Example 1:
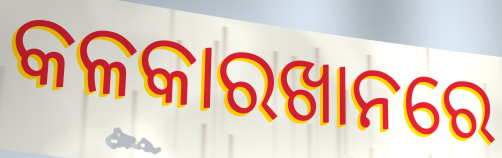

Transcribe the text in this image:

କଳକାରଖାନରେ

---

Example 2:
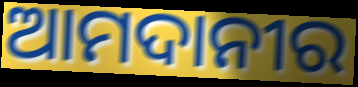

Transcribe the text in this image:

ଆମଦାନୀର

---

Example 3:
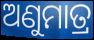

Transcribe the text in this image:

ଅଣୁମାତ୍ର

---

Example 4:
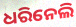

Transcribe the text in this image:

ଧରିନେଲି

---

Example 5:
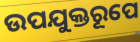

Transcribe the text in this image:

ଉପଯୁକ୍ତରୂପେ